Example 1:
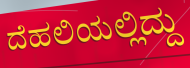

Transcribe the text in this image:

ದೆಹಲಿಯಲ್ಲಿದ್ದು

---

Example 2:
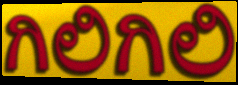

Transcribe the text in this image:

ಗಿಲಿಗಿಲಿ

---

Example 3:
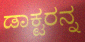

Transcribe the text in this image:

ಡಾಕ್ಟರನ್ನ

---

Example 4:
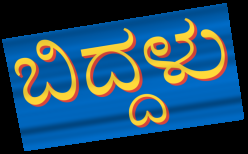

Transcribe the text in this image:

ಬಿದ್ದಳು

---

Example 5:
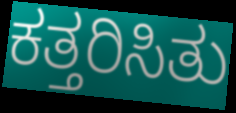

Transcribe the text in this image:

ಕತ್ತರಿಸಿತು